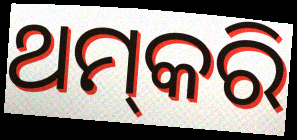
ଥମ୍‌କରି